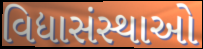
વિદ્યાસંસ્થાઓ